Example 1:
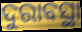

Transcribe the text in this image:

ଦୁରାବସ୍ଥା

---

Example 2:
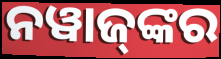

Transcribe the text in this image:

ନୱାଜ୍‍ଙ୍କର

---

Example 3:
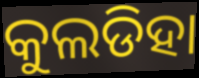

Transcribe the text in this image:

କୁଲଡିହା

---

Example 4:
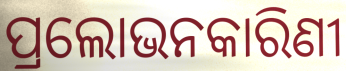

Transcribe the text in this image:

ପ୍ରଲୋଭନକାରିଣୀ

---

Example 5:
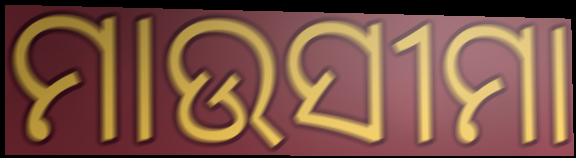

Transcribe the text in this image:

ମାଉସୀମା